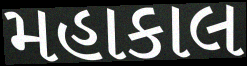
મહાકાલ